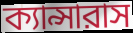
ক্যান্সারাস